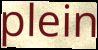
plein